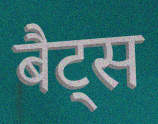
बैट्स